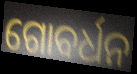
ଗୋବର୍ଧନ